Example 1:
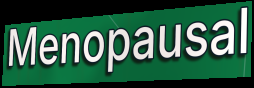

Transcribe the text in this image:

Menopausal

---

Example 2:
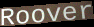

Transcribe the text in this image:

Roover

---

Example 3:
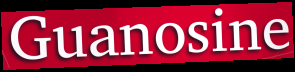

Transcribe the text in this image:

Guanosine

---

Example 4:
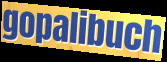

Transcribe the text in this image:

gopalibuch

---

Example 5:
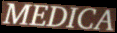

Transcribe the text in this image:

MEDICA